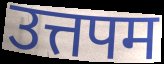
उत्तपम